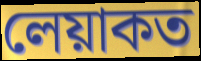
লেয়াকত